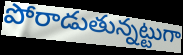
పోరాడుతున్నట్టుగా